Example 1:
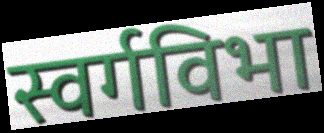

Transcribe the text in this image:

स्वर्गविभा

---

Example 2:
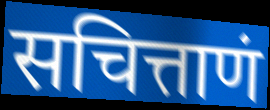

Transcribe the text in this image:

सचित्ताणं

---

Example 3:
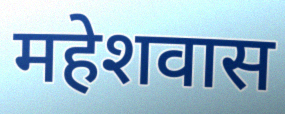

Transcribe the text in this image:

महेशवास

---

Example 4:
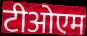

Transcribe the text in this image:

टीओएम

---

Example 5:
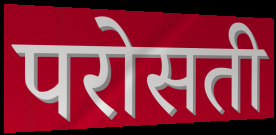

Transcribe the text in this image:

परोसती